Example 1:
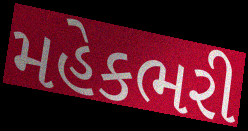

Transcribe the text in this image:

મહેકભરી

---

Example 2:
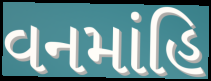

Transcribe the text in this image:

વનમાંહિ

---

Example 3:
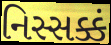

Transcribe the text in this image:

નિસ્સક્કં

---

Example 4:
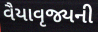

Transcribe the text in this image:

વૈયાવૃજ્યની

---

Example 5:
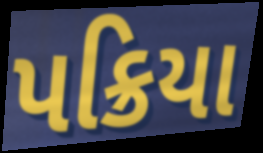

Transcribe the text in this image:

પક્રિયા